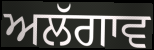
ਅਲੱਗਾਵ